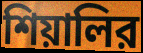
শিয়ালির